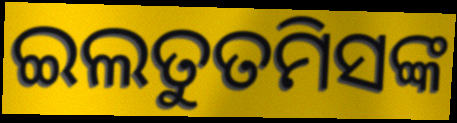
ଇଲତୁତମିସଙ୍କ